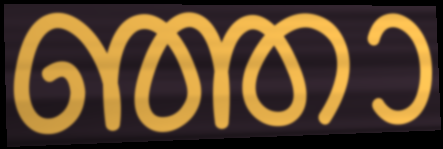
ഞ്ഞാ